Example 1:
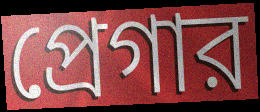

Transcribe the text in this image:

প্রেগার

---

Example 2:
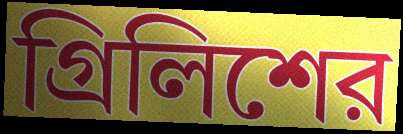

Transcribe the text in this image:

গ্রিলিশের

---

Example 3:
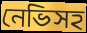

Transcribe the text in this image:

নেভিসহ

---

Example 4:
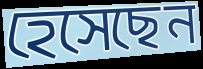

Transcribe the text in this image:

হেসেছেন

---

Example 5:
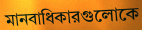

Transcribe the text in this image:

মানবাধিকারগুলোকে